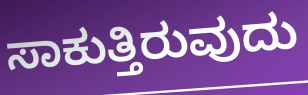
ಸಾಕುತ್ತಿರುವುದು